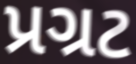
પ્રગ્રટ